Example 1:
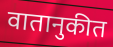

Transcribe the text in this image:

वातानुकीत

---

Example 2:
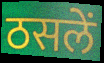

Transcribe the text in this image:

ठसलें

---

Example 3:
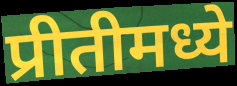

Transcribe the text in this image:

प्रीतीमध्ये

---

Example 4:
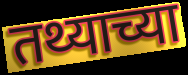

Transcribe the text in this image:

तथ्याच्या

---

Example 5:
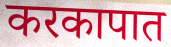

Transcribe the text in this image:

करकापात